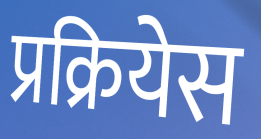
प्रक्रियेस